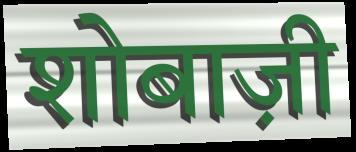
शोबाज़ी